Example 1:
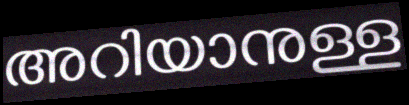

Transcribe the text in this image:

അറിയാനുള്ള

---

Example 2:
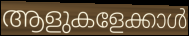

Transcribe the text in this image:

ആളുകളേക്കാൾ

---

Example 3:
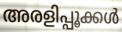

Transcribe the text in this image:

അരളിപ്പൂക്കൾ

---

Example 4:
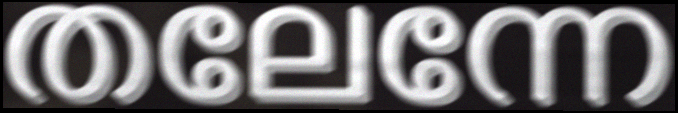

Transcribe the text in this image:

തലേന്നേ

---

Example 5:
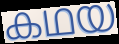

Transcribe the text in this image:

കഥയ